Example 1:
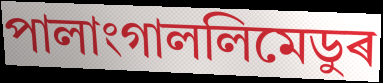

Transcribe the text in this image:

পালাংগাললিমেডুৰ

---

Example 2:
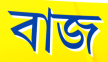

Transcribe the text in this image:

বাজ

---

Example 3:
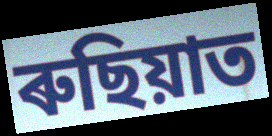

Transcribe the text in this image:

ৰুছিয়াত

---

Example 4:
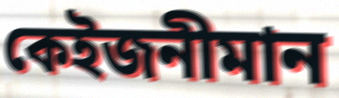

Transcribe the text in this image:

কেইজনীমান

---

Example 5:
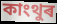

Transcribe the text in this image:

কাংথুৰ